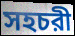
সহচরী